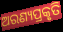
ଅରଣ୍ୟପ୍ରକୃତି